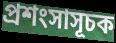
প্ৰশংসাসূচক